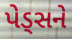
પેડ્સને